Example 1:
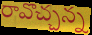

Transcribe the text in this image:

రావొచ్చన్న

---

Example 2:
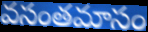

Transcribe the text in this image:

వసంతమాసం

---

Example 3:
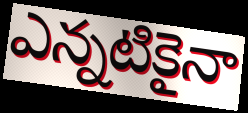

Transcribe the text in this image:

ఎన్నటికైనా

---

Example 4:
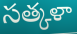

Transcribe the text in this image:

సత్కళా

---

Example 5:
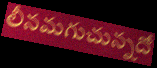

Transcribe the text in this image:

లీనమగుచున్నదో